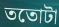
ততোটা